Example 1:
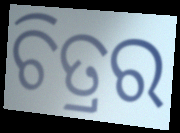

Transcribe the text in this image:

ଚିତ୍ରର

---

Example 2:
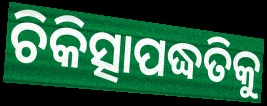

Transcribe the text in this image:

ଚିକିତ୍ସାପଦ୍ଧତିକୁ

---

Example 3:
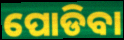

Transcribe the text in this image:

ପୋଡିବା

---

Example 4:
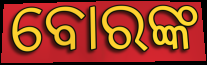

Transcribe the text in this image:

ବୋରଙ୍କ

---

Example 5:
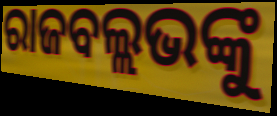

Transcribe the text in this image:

ରାଜବଲ୍ଲଭଙ୍କୁ